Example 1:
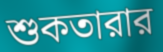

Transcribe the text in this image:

শুকতারার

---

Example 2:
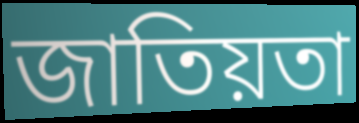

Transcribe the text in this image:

জাতিয়তা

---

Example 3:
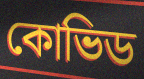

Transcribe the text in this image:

কোভিড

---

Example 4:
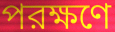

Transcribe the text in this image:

পরক্ষণে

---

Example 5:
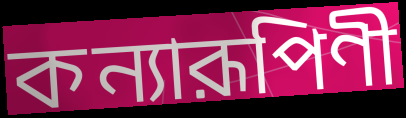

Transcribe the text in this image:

কন্যারূপিণী